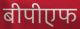
बीपीएफ